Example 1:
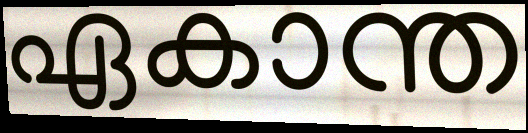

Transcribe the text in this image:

ഏകാന്ത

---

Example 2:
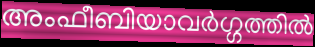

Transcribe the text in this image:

അംഫീബിയാവർഗ്ഗത്തിൽ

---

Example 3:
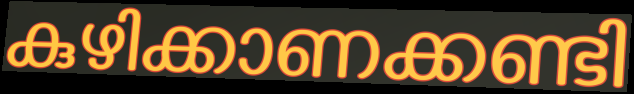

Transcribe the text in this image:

കുഴിക്കാണക്കണ്ടി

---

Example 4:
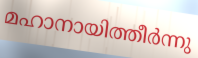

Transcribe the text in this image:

മഹാനായിത്തീർന്നു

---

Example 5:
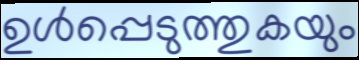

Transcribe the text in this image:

ഉൾപ്പെടുത്തുകയും